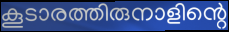
കൂടാരത്തിരുനാളിന്റെ